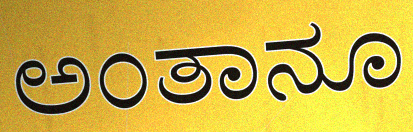
ಅಂತಾನೂ